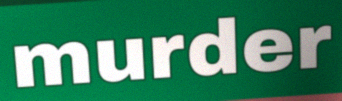
murder